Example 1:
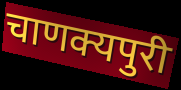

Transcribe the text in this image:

चाणक्यपुरी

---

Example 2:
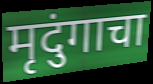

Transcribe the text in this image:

मृदुंगाचा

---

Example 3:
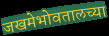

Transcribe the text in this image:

जखमेभोवतालच्या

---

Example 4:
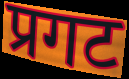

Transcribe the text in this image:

प्रगट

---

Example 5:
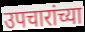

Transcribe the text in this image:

उपचारांच्या